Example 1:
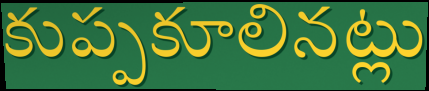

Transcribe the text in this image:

కుప్పకూలినట్లు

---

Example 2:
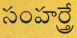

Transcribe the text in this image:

సంహర్త్రే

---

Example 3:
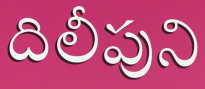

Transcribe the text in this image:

దిలీపుని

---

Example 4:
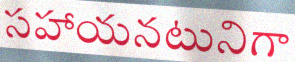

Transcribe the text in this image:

సహాయనటునిగా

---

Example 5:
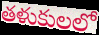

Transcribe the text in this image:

తళుకులలో